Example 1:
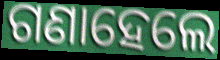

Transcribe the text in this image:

ଗଣାହେଲେ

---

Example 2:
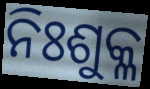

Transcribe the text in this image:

ନିଃଶୁକ୍ଳ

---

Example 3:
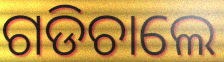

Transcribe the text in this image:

ଗଡିଚାଲେ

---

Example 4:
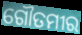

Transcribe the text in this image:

ଗୌତମୀର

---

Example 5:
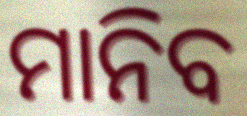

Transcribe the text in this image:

ମାନିବ